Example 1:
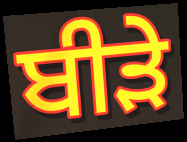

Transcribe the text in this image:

ਬੀੜੇ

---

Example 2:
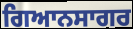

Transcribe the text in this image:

ਗਿਆਨਸਾਗਰ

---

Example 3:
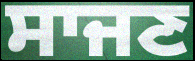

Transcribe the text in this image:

ਸਾਜਣ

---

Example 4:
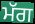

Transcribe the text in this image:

ਮੱਗ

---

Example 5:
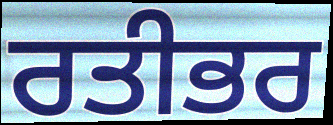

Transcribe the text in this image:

ਰਤੀਭਰ